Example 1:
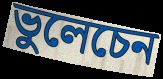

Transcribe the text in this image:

ভুলেচেন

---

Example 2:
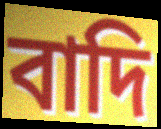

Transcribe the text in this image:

বাদি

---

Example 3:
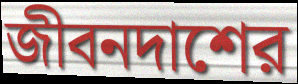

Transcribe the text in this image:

জীবনদাশের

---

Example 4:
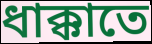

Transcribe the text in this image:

ধাক্কাতে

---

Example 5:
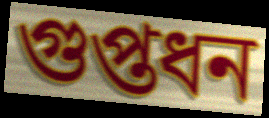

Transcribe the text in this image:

গুপ্তধন